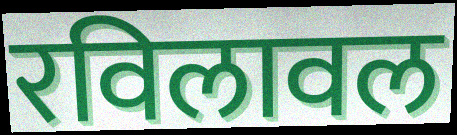
रविलावल